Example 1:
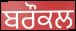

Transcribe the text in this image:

ਬਰੌਕਲ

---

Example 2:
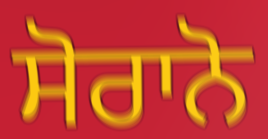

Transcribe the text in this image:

ਸੋਰਾਨੋ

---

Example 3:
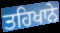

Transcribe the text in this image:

ਤਹਿਖਾਨੇ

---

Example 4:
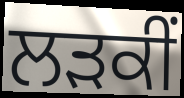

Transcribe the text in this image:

ਲੜਕੀਂ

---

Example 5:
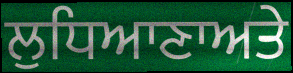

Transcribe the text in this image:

ਲੁਧਿਆਣਾਅਤੇ